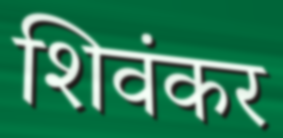
शिवंकर